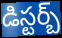
డిస్టర్బ్